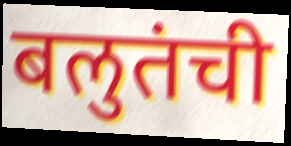
बलुतंची